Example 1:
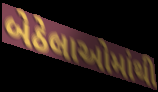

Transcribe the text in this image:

બેઠેલાઓમાંથી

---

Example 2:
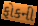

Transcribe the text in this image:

ફોકની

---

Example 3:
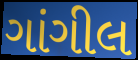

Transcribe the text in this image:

ગાંગીલ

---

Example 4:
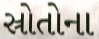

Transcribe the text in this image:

સ્રોતોના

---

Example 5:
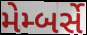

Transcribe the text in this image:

મેમ્બર્સે